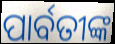
ପାର୍ବତୀଙ୍କ